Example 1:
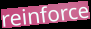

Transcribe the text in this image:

reinforce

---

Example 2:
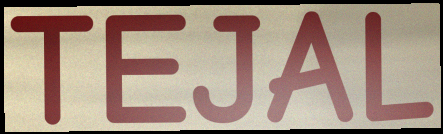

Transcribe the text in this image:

TEJAL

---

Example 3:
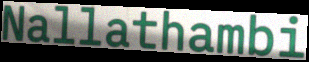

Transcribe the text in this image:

Nallathambi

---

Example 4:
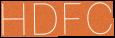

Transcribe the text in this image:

HDFC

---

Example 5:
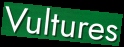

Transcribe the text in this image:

Vultures